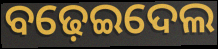
ବଢ଼େଇଦେଲ